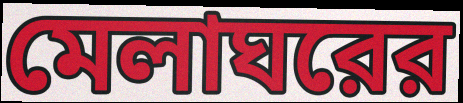
মেলাঘরের